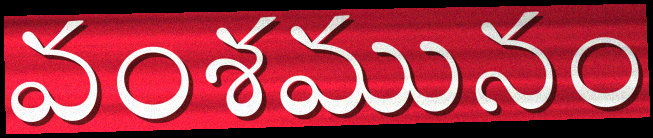
వంశమునం